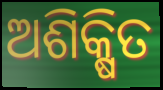
ଅଶିକ୍ଷିତ